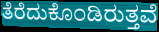
ತೆರೆದುಕೊಂಡಿರುತ್ತವೆ